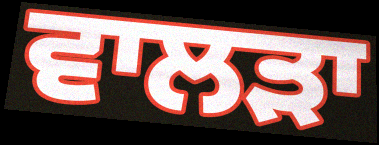
ਵਾਲੜਾ